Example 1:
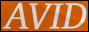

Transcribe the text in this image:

AVID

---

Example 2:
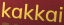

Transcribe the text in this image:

kakkai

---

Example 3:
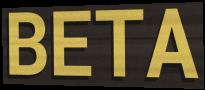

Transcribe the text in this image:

BETA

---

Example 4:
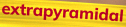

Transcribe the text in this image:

extrapyramidal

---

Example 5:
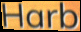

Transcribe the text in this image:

Harb